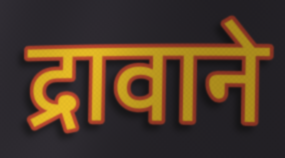
द्रावाने